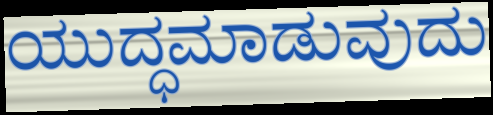
ಯುದ್ಧಮಾಡುವುದು